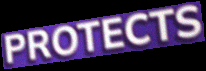
PROTECTS